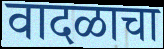
वादळाचा